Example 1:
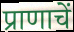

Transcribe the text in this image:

प्राणाचें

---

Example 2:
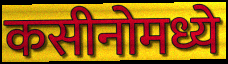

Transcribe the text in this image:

कसीनोमध्ये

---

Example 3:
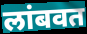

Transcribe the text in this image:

लांबवत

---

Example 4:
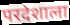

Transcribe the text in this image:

परदेशाला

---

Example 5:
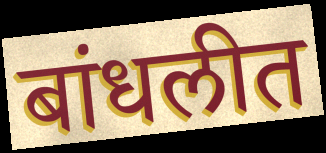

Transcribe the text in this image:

बांधलीत